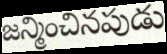
జన్మించినపుడు